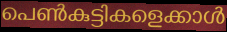
പെൺകുട്ടികളെക്കാൾ